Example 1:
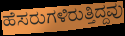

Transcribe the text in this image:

ಹೆಸರುಗಳಿರುತ್ತಿದ್ದವು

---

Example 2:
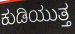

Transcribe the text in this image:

ಕುಡಿಯುತ್ತ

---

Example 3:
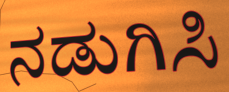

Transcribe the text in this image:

ನಡುಗಿಸಿ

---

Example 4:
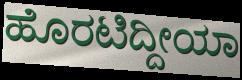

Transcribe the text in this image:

ಹೊರಟಿದ್ದೀಯಾ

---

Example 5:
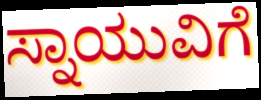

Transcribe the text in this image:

ಸ್ನಾಯುವಿಗೆ